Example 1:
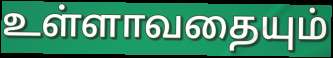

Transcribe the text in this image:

உள்ளாவதையும்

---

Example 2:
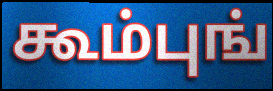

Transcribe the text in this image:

கூம்புங்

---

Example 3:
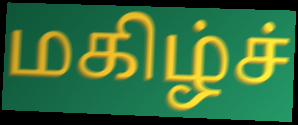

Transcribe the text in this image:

மகிழ்ச்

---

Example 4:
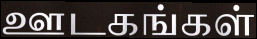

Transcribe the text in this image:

ஊடகங்கள்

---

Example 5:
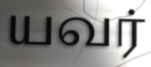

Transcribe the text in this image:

யவர்